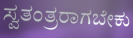
ಸ್ವತಂತ್ರರಾಗಬೇಕು